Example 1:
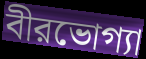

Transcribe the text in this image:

বীরভোগ্যা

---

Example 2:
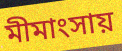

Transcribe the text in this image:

মীমাংসায়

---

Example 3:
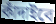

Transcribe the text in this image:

কাঁদাইবে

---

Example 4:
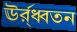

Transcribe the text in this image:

ঊর্র্ধ্বতন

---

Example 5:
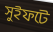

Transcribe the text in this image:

সুইফটে